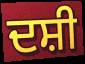
ਦਸ਼ੀ